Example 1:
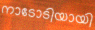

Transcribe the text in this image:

നാടോടിയായി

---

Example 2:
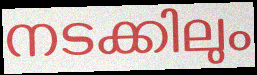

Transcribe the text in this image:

നടക്കിലും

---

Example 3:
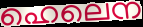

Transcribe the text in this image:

ഹെലെന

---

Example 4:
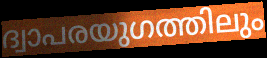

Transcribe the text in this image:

ദ്വാപരയുഗത്തിലും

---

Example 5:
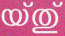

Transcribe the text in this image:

യ്തു്